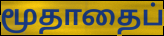
மூதாதைப்